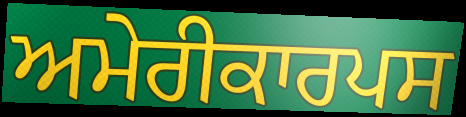
ਅਮੇਰੀਕਾਰਪਸ